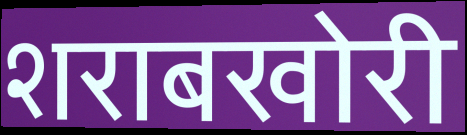
शराबखोरी